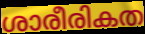
ശാരീരികത